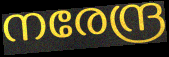
നരേന്ദ്ര